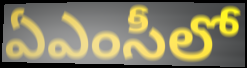
ఏఎంసీలో